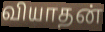
வியாதன்